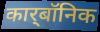
कार्‌बॉनिक